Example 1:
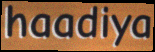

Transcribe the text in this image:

haadiya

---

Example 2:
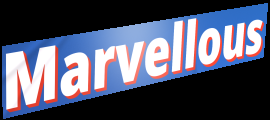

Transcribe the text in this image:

Marvellous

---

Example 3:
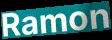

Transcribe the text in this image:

Ramon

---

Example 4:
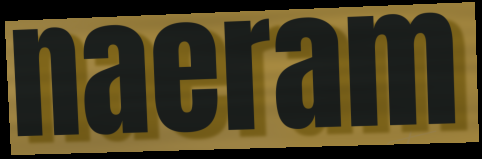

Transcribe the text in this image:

naeram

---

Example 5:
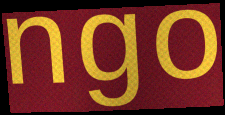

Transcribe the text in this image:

ngo